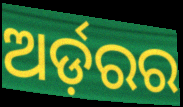
ଅର୍ଡ଼ରର